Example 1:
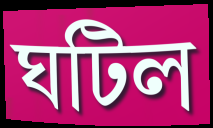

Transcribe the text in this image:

ঘটিল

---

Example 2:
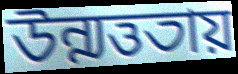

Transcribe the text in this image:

উন্মত্ততায়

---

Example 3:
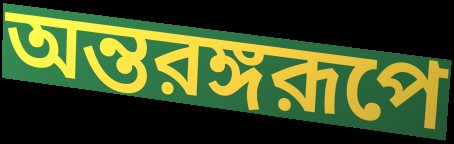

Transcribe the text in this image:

অন্তরঙ্গরূপে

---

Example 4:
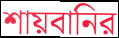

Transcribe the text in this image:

শায়বানির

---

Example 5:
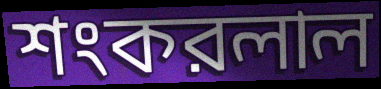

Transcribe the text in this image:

শংকরলাল